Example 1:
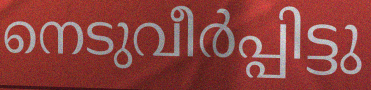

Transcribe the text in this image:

നെടുവീർപ്പിട്ടു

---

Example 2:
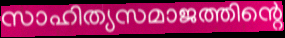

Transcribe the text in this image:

സാഹിത്യസമാജത്തിന്റെ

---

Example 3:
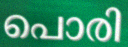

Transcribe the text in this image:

പൊരി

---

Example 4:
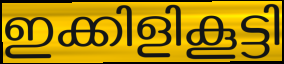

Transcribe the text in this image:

ഇക്കിളികൂട്ടി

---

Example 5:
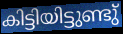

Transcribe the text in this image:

കിട്ടിയിട്ടുണ്ടു്